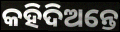
କହିଦିଅନ୍ତେ